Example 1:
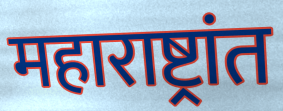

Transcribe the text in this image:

महाराष्ट्रांत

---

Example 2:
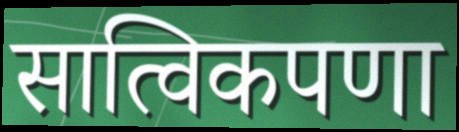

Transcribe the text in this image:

सात्विकपणा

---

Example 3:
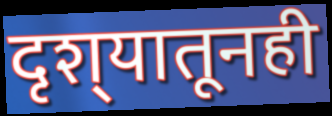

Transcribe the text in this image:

दृश्यातूनही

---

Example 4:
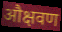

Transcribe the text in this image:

औक्षवण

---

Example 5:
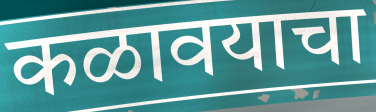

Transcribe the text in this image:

कळावयाचा